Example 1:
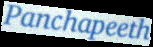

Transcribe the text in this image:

Panchapeeth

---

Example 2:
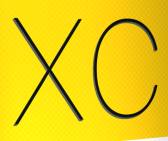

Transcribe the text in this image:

XC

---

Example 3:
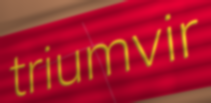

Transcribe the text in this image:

triumvir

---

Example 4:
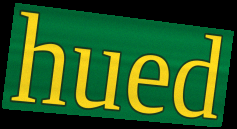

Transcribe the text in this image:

hued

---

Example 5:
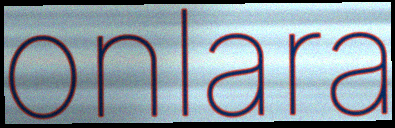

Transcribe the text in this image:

onlara